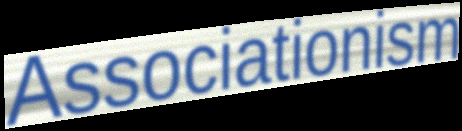
Associationism